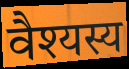
वैश्यस्य